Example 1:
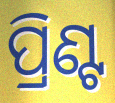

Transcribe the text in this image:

ପ୍ରିଣ୍ଟ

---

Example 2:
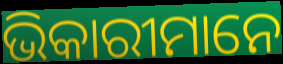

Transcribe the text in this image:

ଭିକାରୀମାନେ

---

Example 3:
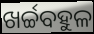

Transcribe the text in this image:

ଖର୍ଚ୍ଚବହୁଳ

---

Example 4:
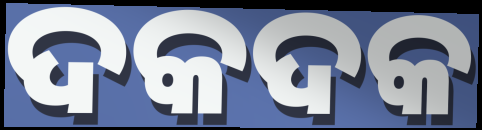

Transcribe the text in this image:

ଦକଦକ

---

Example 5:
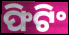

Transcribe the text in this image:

ଫିଟିଂ